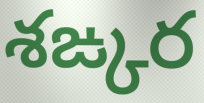
శఙ్కర